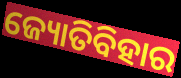
ଜ୍ୟୋତିବିହାର